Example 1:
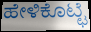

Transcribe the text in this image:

ಹೇಳಿಕೊಟ್ಟೆ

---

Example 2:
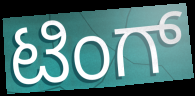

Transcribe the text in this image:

ಟಿಂಗ್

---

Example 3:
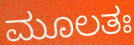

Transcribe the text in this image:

ಮೂಲತಃ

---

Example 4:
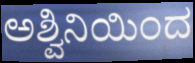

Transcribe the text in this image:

ಅಶ್ವಿನಿಯಿಂದ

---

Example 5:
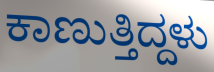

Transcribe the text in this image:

ಕಾಣುತ್ತಿದ್ದಳು